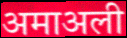
अमाअली